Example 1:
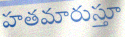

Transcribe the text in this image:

హతమారుస్తూ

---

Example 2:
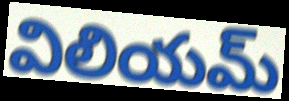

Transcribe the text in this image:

విలియమ్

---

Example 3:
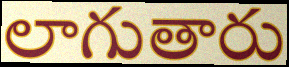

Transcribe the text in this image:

లాగుతారు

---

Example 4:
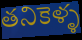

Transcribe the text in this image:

తనికెళ్ళ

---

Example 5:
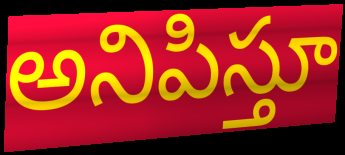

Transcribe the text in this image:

అనిపిస్తూ